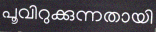
പൂവിറുക്കുന്നതായി